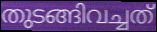
തുടങ്ങിവച്ചത്